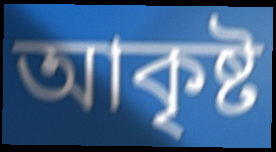
আকৃষ্ট